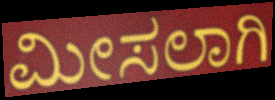
ಮೀಸಲಾಗಿ